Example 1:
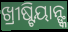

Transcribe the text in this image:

ଖ୍ରୀଷ୍ଟିୟାନ୍ଙ୍କ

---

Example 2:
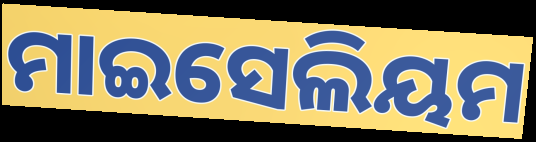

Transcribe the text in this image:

ମାଇସେଲିୟମ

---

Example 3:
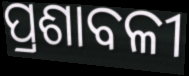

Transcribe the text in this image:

ପ୍ରଶାବଳୀ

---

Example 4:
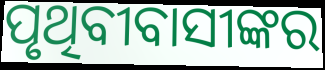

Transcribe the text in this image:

ପୃଥିବୀବାସୀଙ୍କର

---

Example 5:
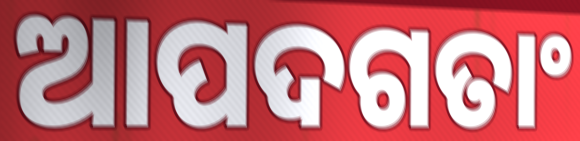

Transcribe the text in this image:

ଆପଦଗତାଂ